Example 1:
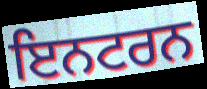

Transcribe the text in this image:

ਇਨਟਰਨ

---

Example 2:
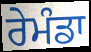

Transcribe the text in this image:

ਰੇਮੰਡਾ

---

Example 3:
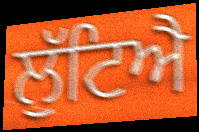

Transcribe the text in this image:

ਲੁੱਟਿਐ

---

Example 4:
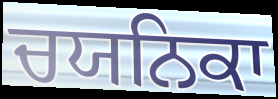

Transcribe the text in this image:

ਚਯਨਿਕਾ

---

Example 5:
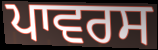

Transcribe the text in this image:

ਪਾਵਰਸ